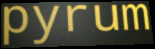
pyrum